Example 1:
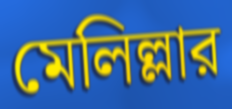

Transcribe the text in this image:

মেলিল্লার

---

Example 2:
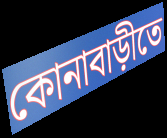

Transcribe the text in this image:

কোনাবাড়ীতে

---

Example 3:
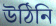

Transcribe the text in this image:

উঠিনি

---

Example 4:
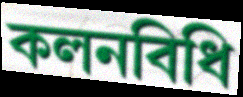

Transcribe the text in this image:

কলনবিধি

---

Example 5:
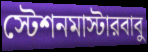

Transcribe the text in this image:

স্টেশনমাস্টারবাবু